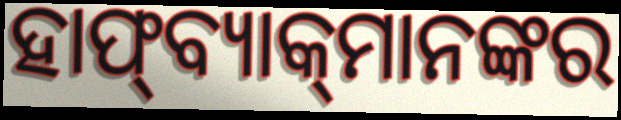
ହାଫ୍‍ବ୍ୟାକ୍‍ମାନଙ୍କର